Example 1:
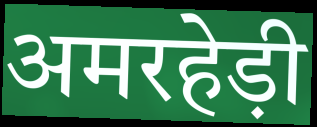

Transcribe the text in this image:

अमरहेड़ी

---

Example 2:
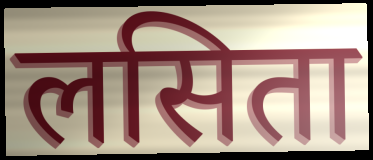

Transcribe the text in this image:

लसिता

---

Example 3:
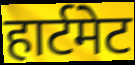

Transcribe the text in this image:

हार्टमेट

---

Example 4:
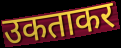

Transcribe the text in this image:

उकताकर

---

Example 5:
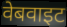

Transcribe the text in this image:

वेबवाइट